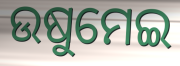
ଉଷୁମେଇ